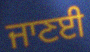
ਜਾਣਈ